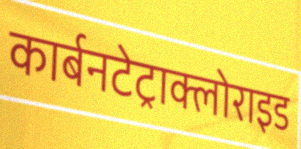
कार्बनटेट्राक्लोराइड